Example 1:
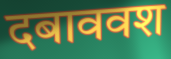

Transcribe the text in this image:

दबाववश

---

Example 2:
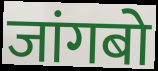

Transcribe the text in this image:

जांगबो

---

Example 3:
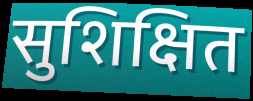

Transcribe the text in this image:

सुशिक्षित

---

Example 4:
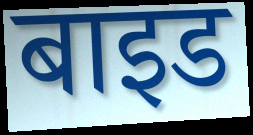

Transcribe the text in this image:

बाइड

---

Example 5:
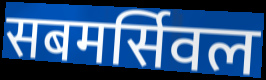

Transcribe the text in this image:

सबमर्सिवल